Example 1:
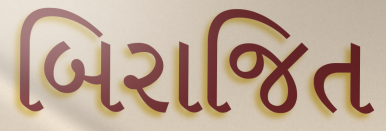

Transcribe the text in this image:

બિરાજિત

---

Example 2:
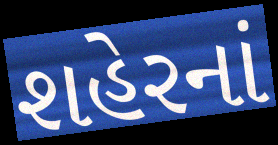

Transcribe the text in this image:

શહેરનાં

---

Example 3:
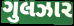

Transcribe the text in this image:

ગુલઝાર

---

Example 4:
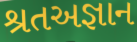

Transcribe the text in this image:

શ્રતઅજ્ઞાન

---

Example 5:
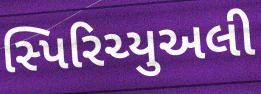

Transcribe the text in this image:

સ્પિરિચ્યુઅલી